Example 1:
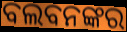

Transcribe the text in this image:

ବଲବନଙ୍କର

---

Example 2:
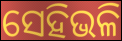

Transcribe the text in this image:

ସେହିଭଳି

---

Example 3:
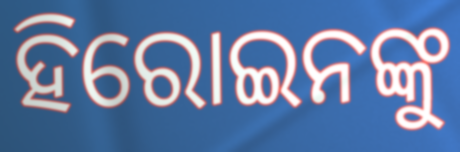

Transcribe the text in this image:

ହିରୋଇନଙ୍କୁ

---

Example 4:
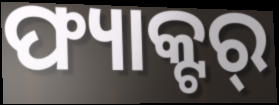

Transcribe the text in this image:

ଫ୍ୟାକ୍ଟର୍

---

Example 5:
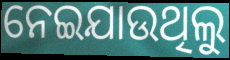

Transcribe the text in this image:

ନେଇଯାଉଥିଲୁ